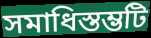
সমাধিস্তম্ভটি